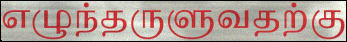
எழுந்தருளுவதற்கு